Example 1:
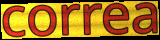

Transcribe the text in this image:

correa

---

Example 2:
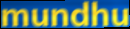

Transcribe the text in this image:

mundhu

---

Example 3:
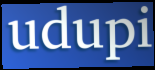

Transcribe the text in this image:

udupi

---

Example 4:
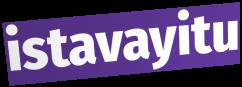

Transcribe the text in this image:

istavayitu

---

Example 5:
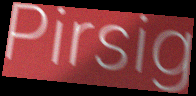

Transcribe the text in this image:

Pirsig